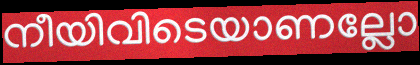
നീയിവിടെയാണല്ലോ